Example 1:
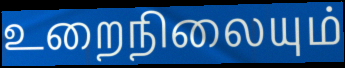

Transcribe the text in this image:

உறைநிலையும்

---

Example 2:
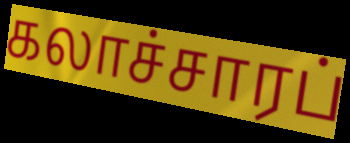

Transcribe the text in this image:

கலாச்சாரப்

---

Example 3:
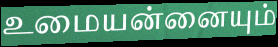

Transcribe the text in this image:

உமையன்னையும்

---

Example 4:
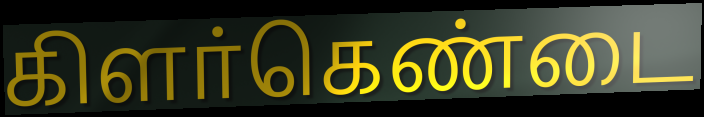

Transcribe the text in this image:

கிளர்கெண்டை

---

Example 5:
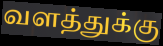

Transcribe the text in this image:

வளத்துக்கு